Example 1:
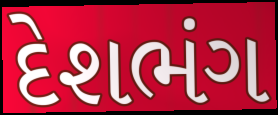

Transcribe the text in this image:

દેશભંગ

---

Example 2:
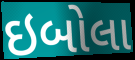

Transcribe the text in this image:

ઇબોલા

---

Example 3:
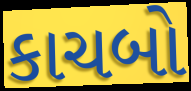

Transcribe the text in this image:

કાચબો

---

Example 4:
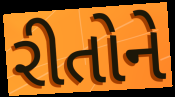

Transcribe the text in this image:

રીતોને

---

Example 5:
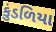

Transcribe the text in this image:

કુંડળિયા